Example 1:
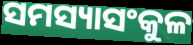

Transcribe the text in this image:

ସମସ୍ୟାସଂକୁଳ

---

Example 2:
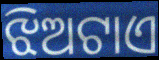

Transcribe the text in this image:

ଝିଅଟାଏ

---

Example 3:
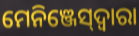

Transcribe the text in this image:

ମେନିଞ୍ଜେସ୍‌ଦ୍ୱାରା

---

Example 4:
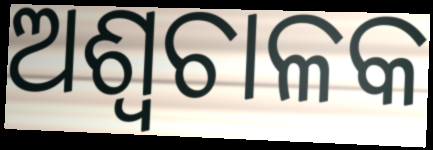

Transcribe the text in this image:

ଅଶ୍ୱଚାଳକ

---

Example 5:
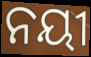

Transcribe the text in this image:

ନୟୀ